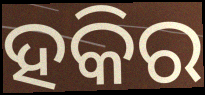
ହକିର